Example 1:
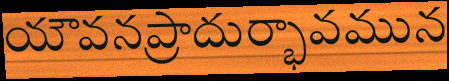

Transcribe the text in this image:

యౌవనప్రాదుర్భావమున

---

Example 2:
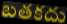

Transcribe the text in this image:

బతకదు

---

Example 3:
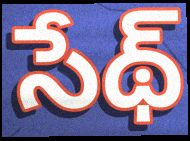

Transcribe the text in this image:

సేథ్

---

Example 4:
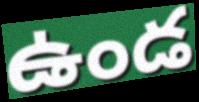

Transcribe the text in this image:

ఉండ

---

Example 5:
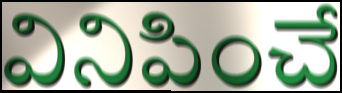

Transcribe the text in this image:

వినిపించే